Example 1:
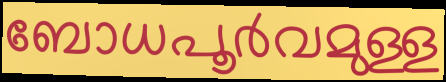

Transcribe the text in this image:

ബോധപൂർവമുള്ള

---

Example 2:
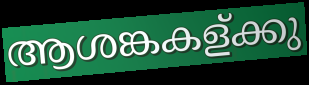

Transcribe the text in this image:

ആശങ്കകള്ക്കു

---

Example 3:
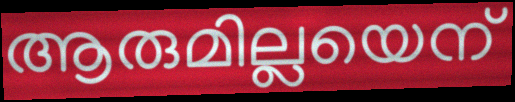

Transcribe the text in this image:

ആരുമില്ലയെന്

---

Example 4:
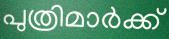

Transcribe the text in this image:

പുത്രിമാർക്ക്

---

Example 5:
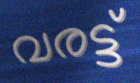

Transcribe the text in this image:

വരട്ട്